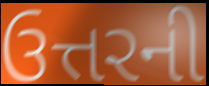
ઉત્તરની